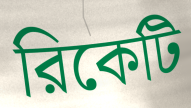
রিকেটি